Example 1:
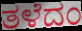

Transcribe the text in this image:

ತಳೆದಂ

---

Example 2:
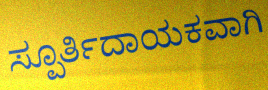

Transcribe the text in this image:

ಸ್ಪೂರ್ತಿದಾಯಕವಾಗಿ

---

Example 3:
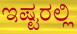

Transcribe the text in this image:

ಇಷ್ಟರಲ್ಲಿ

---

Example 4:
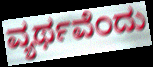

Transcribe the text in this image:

ವ್ಯರ್ಥವೆಂದು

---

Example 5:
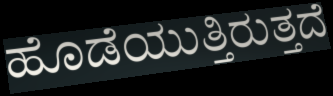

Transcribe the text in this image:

ಹೊಡೆಯುತ್ತಿರುತ್ತದೆ